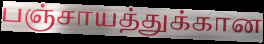
பஞ்சாயத்துக்கான